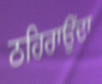
ਠਹਿਰਾਉਂਦਾ